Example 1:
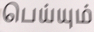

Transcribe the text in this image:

பெய்யும்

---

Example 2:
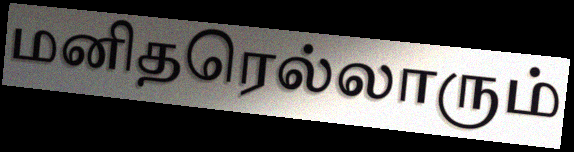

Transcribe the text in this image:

மனிதரெல்லாரும்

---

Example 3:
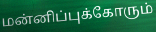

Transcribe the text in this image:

மன்னிப்புக்கோரும்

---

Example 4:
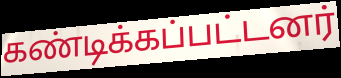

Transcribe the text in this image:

கண்டிக்கப்பட்டனர்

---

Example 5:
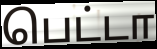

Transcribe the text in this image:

பெட்டா